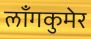
लाँगकुमेर